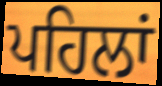
ਪਹਿਲਾਂ